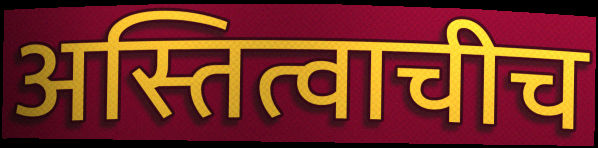
अस्तित्वाचीच